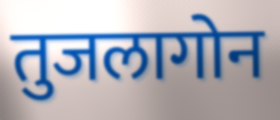
तुजलागोन